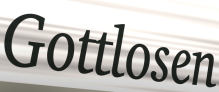
Gottlosen